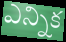
ఎన్నిక